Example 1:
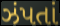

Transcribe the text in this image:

ઝંપતાં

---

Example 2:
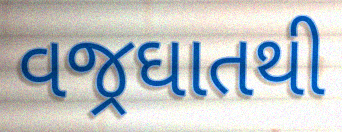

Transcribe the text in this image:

વજ્રઘાતથી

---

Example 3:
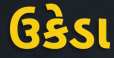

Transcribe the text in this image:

ઉકેડા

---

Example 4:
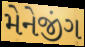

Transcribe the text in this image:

મેનેજીંગ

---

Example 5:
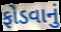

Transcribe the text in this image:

ફોડવાનું